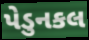
પેડુનકલ